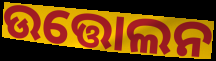
ଉତ୍ତୋଲନ